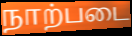
நாற்படை